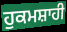
ਹੁਕਮਸ਼ਾਹੀ